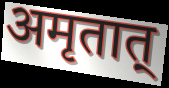
अमृतात्